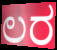
ಲರ